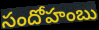
సందోహంబు